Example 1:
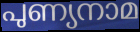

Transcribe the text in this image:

പുണ്യനാമ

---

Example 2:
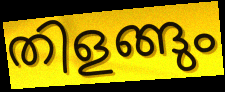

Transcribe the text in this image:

തിളങ്ങും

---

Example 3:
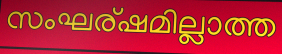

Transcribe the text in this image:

സംഘര്ഷമില്ലാത്ത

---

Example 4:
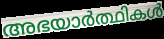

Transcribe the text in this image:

അഭയാർത്ഥികൾ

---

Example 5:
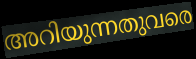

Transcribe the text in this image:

അറിയുന്നതുവരെ